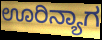
ಊರಿನ್ಯಾಗ